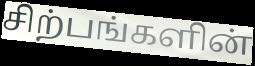
சிற்பங்களின்